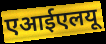
एआईएलयू